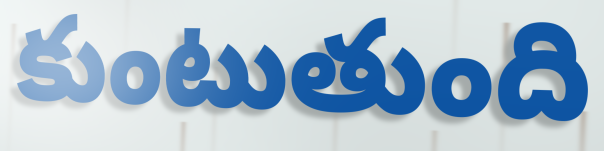
కుంటుతుంది